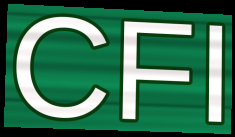
CFI